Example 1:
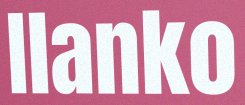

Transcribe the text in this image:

Ilanko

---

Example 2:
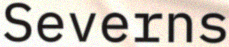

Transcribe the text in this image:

Severns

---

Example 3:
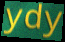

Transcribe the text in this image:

ydy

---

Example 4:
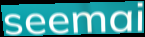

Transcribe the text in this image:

seemai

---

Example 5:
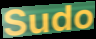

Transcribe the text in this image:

Sudo